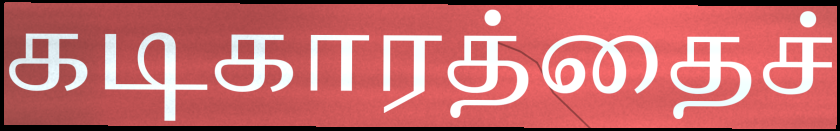
கடிகாரத்தைச்